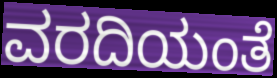
ವರದಿಯಂತೆ